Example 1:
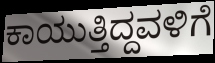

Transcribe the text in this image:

ಕಾಯುತ್ತಿದ್ದವಳಿಗೆ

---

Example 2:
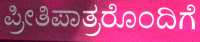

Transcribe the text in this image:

ಪ್ರೀತಿಪಾತ್ರರೊಂದಿಗೆ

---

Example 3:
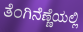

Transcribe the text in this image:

ತೆಂಗಿನೆಣ್ಣೆಯಲ್ಲಿ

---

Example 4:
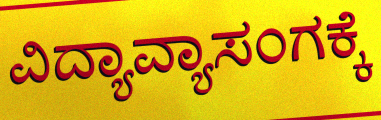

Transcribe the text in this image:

ವಿದ್ಯಾವ್ಯಾಸಂಗಕ್ಕೆ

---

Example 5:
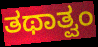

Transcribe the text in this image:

ತಥಾತ್ವಂ